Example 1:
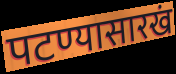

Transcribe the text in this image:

पटण्यासारखं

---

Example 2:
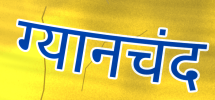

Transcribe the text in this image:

ग्यानचंद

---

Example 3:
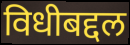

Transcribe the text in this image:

विधीबद्दल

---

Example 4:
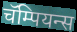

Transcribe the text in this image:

चॅम्पियन्स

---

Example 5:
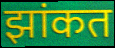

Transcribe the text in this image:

झांकत